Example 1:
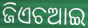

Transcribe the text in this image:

ଜିଏଚଆଇ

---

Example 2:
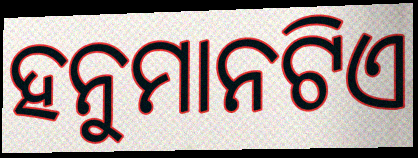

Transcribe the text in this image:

ହନୁମାନଟିଏ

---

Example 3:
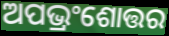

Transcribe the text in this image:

ଅପଭ୍ରଂଶୋତ୍ତର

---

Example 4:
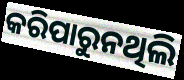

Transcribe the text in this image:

କରିପାରୁନଥିଲି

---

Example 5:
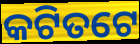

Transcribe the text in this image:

କଟିତଟେ